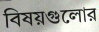
বিষয়গুলোর